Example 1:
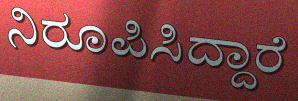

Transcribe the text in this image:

ನಿರೂಪಿಸಿದ್ದಾರೆ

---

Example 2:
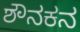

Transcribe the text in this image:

ಶೌನಕನ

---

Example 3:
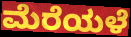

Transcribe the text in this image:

ಮೆರೆಯಳೆ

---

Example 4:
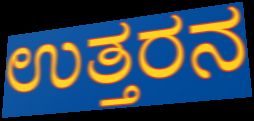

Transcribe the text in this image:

ಉತ್ತರನ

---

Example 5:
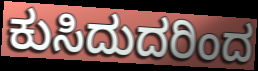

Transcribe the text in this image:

ಕುಸಿದುದರಿಂದ